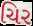
ચિર